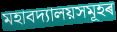
মহাবদ্যালয়সমূহৰ